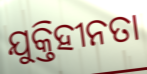
ଯୁକ୍ତିହୀନତା